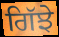
ਗਿੱਝੇ